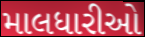
માલધારીઓ